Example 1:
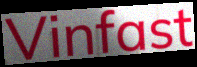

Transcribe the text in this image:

Vinfast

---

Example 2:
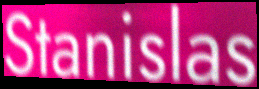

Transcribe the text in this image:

Stanislas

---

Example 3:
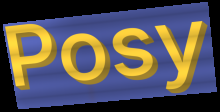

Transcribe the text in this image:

Posy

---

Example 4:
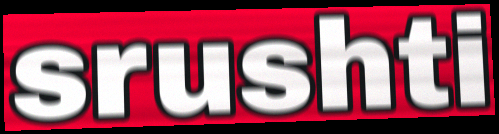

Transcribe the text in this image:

srushti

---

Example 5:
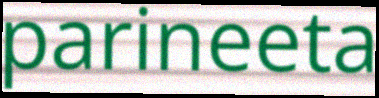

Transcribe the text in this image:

parineeta